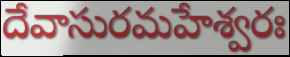
దేవాసురమహేశ్వరః